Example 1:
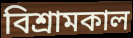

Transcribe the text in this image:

বিশ্রামকাল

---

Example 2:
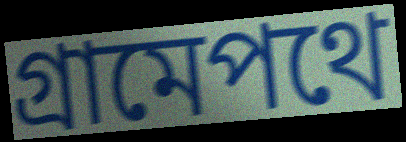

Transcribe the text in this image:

গ্রামেপথে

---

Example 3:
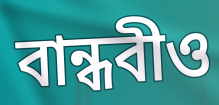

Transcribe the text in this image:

বান্ধবীও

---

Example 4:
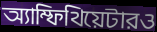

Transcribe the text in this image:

অ্যাম্ফিথিয়েটারও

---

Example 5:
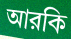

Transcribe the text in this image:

আরকি